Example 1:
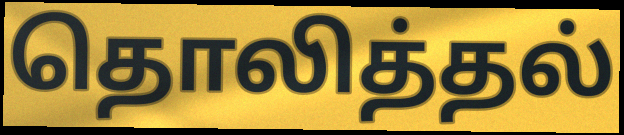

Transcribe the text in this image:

தொலித்தல்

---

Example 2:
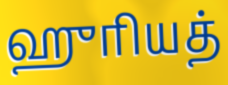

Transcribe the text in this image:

ஹுரியத்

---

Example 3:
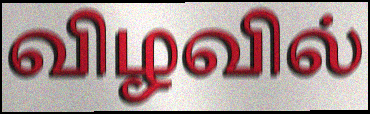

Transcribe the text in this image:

விழவில்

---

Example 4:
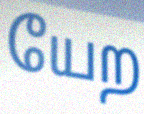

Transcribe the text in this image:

யேற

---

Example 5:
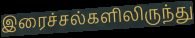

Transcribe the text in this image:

இரைச்சல்களிலிருந்து